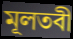
মূলতবী